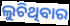
ଲୁଚିଥିବାର